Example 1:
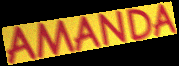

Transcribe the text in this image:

AMANDA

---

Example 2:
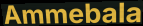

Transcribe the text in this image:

Ammebala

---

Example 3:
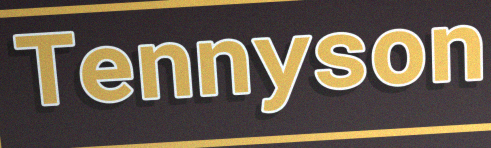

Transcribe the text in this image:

Tennyson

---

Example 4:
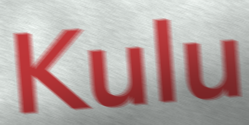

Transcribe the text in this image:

Kulu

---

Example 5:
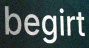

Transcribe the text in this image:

begirt